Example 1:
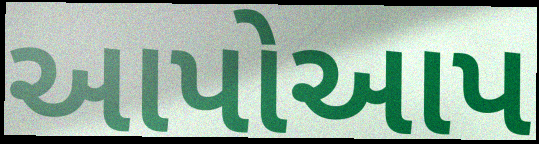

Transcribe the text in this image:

આપોઆપ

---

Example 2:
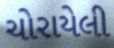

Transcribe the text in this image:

ચોરાયેલી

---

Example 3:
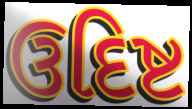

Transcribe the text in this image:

ઉદિષ્ટ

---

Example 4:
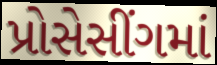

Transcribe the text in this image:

પ્રોસેસીંગમાં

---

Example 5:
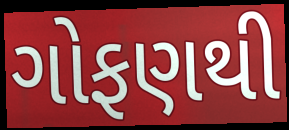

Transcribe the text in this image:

ગોફણથી